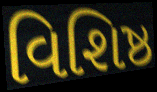
વિશિષ્ઠ